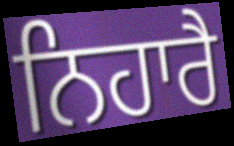
ਨਿਹਾਰੈ